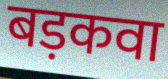
बड़कवा